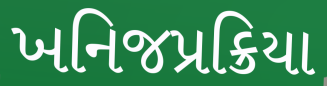
ખનિજપ્રક્રિયા